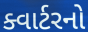
ક્વાર્ટરનો